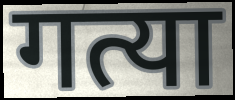
गत्या